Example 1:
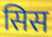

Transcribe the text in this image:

सिस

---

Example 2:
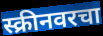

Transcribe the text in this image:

स्क्रीनवरचा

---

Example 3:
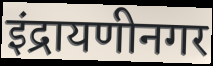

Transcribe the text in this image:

इंद्रायणीनगर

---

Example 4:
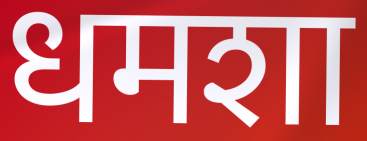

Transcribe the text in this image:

धमशा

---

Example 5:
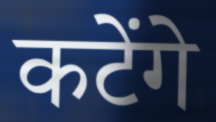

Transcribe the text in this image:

कटेंगे